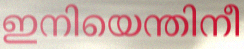
ഇനിയെന്തിനീ